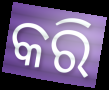
କରି